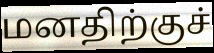
மனதிற்குச்